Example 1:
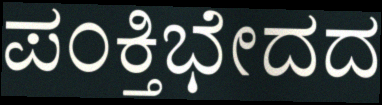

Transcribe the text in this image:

ಪಂಕ್ತಿಭೇದದ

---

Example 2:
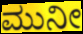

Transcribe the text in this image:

ಮುನೀ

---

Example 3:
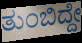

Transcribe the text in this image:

ತುಂಬಿದ್ದೇ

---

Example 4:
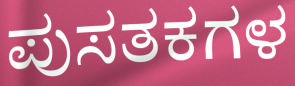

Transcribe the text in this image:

ಪುಸತಕಗಳ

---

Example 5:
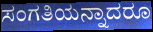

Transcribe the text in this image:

ಸಂಗತಿಯನ್ನಾದರೂ